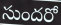
సుందరో